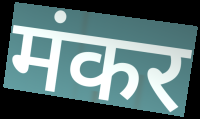
मंकर